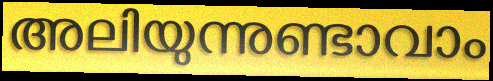
അലിയുന്നുണ്ടാവാം